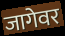
जागेवर